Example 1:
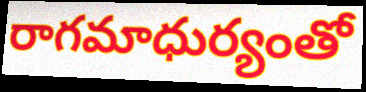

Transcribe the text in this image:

రాగమాధుర్యంతో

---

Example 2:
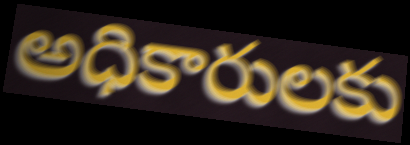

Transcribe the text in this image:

అధికారులకు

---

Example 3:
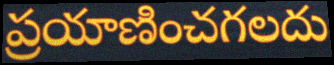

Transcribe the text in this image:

ప్రయాణించగలదు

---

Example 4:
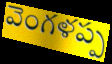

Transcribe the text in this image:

వెంగళప్ప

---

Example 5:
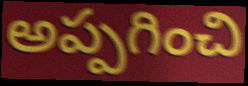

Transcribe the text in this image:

అప్పగించి